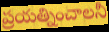
ప్రయత్నించాలనీ